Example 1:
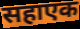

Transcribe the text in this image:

सहाएक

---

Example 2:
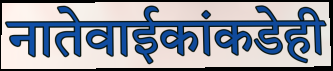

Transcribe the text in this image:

नातेवाईकांकडेही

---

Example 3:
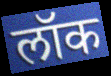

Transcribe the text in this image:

लॉक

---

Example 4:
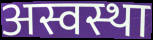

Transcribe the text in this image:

अस्वस्था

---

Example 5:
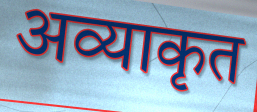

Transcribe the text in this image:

अव्याकृत